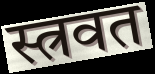
स्त्रवत